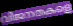
വിജനതകളെ